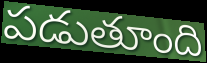
పడుతూంది